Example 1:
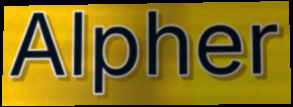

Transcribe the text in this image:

Alpher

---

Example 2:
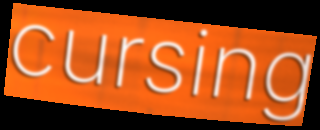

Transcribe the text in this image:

cursing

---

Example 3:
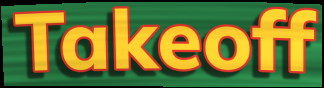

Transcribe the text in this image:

Takeoff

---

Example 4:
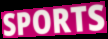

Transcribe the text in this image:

SPORTS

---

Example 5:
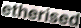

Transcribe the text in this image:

etherised